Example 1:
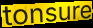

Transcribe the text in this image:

tonsure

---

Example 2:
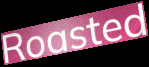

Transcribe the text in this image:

Roasted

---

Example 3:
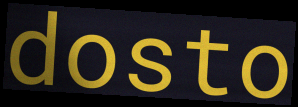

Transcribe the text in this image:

dosto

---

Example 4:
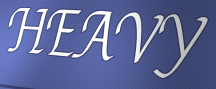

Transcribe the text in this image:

HEAVY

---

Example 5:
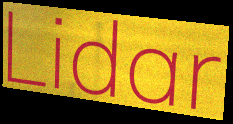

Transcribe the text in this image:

Lidar